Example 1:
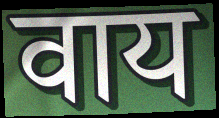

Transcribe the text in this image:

वाय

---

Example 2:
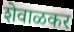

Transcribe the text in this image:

शेवाळकर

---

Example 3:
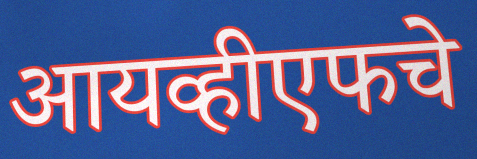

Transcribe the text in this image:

आयव्हीएफचे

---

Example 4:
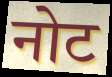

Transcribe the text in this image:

नोट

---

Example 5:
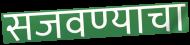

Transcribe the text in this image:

सजवण्याचा